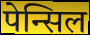
पेन्सिल